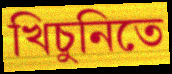
খিচুনিতে